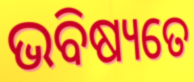
ଭବିଷ୍ୟତେ